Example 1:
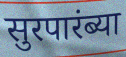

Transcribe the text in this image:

सुरपारंब्या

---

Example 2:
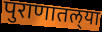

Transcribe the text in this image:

पुराणातल्या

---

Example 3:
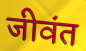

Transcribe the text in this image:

जीवंत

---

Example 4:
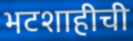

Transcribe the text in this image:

भटशाहीची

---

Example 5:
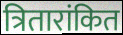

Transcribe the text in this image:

त्रितारांकित